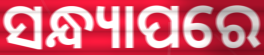
ସନ୍ଧ୍ୟାପରେ